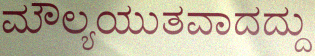
ಮೌಲ್ಯಯುತವಾದದ್ದು